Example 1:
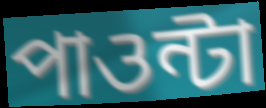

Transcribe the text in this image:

পাওন্টা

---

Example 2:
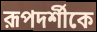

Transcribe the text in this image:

রূপদর্শীকে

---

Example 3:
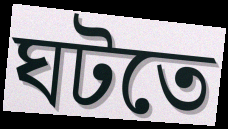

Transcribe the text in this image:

ঘটতে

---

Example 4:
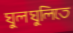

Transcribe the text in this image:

ঘুলঘুলিতে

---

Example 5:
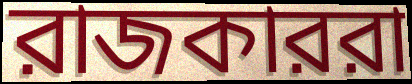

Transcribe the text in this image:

রাজকাররা